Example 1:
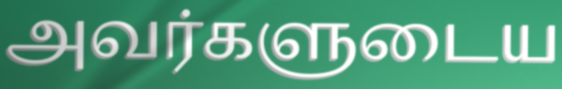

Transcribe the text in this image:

அவர்களுடைய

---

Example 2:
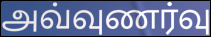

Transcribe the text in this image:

அவ்வுணர்வு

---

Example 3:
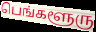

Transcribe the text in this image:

பெங்களூரு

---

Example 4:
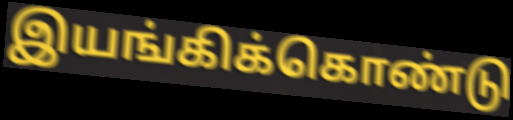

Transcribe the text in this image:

இயங்கிக்கொண்டு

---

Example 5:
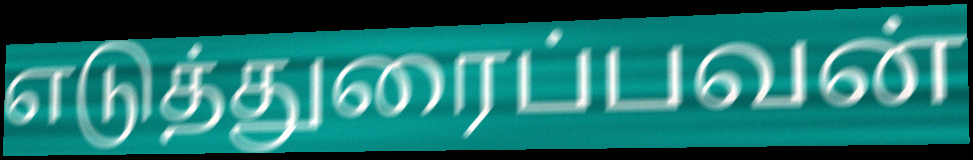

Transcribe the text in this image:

எடுத்துரைப்பவன்